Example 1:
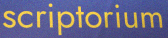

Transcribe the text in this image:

scriptorium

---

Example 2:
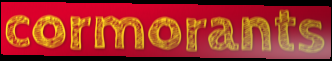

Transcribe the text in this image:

cormorants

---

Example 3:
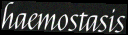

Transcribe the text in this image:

haemostasis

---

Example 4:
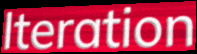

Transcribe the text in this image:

Iteration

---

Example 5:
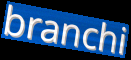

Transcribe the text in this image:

branchi